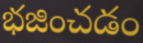
భజించడం